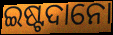
ଇଷ୍ଟଦାନୋ